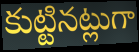
కుట్టినట్లుగా